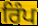
ਰਿੰਪ